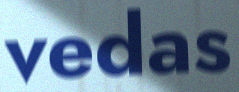
vedas